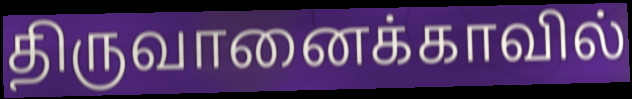
திருவானைக்காவில்